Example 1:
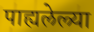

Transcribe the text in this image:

पाह्यलेल्या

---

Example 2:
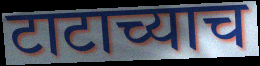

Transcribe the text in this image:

टाटाच्याच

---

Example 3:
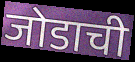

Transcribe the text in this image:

जोडाची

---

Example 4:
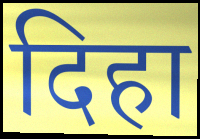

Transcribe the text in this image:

दिहा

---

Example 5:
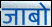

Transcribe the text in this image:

जाबो